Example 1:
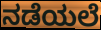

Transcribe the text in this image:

ನಡೆಯಲೆ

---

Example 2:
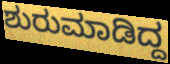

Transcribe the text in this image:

ಶುರುಮಾಡಿದ್ದ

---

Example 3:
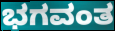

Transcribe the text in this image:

ಭಗವಂತ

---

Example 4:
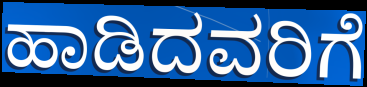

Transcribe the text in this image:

ಹಾಡಿದವರಿಗೆ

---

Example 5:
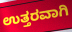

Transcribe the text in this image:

ಉತ್ತರವಾಗಿ